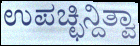
ಉಪಚ್ಛಿನ್ದಿತ್ವಾ